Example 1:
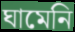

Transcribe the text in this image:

ঘামেনি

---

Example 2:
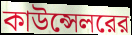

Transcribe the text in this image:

কাউন্সেলরের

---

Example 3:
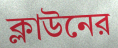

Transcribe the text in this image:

ক্লাউনের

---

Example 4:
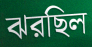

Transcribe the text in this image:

ঝরছিল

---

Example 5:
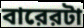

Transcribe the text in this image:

বারেরটা